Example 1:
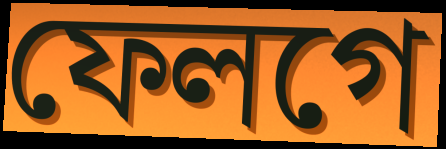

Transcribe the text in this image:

ফেলগে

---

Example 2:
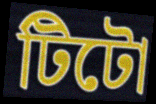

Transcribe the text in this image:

টিটো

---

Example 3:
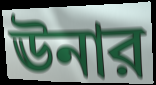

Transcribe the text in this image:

ঊনার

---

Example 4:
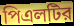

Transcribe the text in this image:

পিএলটির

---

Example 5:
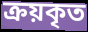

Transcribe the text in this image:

ক্রয়কৃত